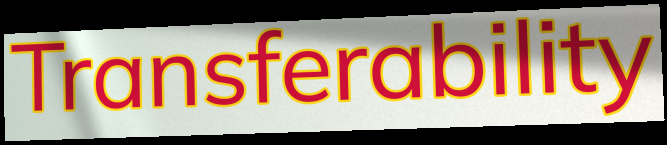
Transferability